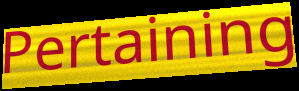
Pertaining